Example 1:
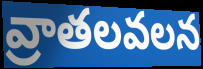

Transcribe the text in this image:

వ్రాతలవలన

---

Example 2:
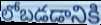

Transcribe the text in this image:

లోబడడానికి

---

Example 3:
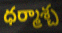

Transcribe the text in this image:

ధర్మాశ్చ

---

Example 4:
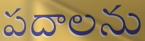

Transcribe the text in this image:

పదాలను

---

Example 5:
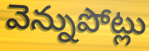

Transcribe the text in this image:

వెన్నుపోట్లు